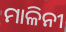
ମାଳିନୀ